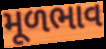
મૂળભાવ